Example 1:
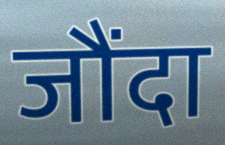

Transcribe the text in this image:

जौंदा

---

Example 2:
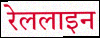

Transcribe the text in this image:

रेललाइन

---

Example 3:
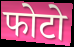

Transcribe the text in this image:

फोटो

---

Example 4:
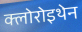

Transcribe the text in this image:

क्लोरोइथेन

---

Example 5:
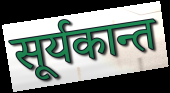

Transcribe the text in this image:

सूर्यकान्त